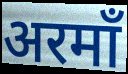
अरमाँ